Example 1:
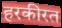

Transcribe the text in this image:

हरकीरत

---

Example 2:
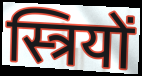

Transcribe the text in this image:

स्त्रियों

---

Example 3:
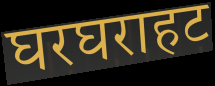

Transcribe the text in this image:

घरघराहट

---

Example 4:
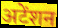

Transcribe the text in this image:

अटेंशन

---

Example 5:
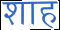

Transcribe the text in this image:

शाह